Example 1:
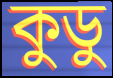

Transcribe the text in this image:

কুডু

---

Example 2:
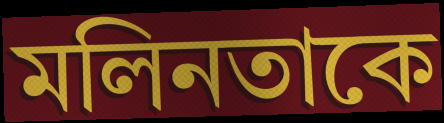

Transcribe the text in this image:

মলিনতাকে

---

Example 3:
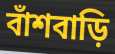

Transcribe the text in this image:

বাঁশবাড়ি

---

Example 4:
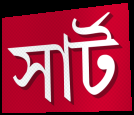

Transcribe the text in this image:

সার্ট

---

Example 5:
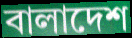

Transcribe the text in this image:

বালাদেশ